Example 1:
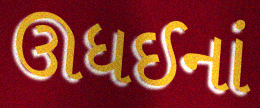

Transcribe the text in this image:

ઊધઈનાં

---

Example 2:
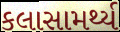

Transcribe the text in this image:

કલાસામર્થ્ય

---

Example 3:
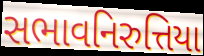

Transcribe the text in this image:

સભાવનિરુત્તિયા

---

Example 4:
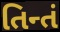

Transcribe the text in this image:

તિન્તં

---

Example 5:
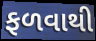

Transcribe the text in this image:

ફળવાથી